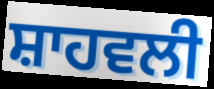
ਸ਼ਾਹਵਲੀ